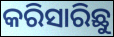
କରିସାରିଛୁ